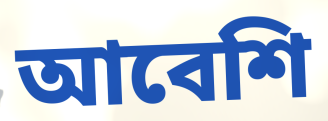
আবেশি